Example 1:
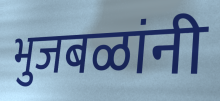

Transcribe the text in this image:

भुजबळांनी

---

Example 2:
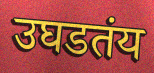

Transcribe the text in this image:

उघडतंय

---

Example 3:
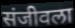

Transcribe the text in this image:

संजीवला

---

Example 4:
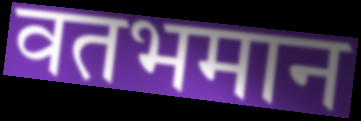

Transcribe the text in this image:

वतभमान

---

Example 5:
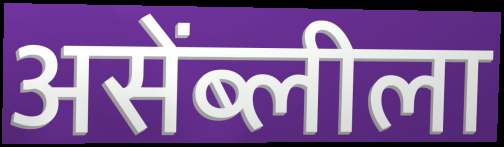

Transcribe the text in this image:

असेंब्लीला